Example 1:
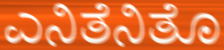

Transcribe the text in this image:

ಎನಿತೆನಿತೊ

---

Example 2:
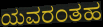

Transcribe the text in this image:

ಯವರಂತಹ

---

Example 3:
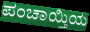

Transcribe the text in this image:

ಪಂಚಾಯ್ತಿಯ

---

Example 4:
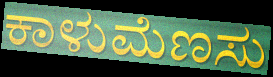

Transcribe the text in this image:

ಕಾಳುಮೆಣಸು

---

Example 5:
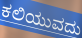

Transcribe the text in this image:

ಕಲಿಯುವದು